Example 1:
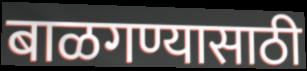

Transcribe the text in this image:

बाळगण्यासाठी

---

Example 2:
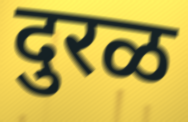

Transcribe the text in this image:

दुरळ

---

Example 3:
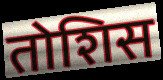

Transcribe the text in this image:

तोशिस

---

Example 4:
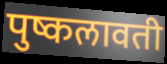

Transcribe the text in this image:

पुष्कलावती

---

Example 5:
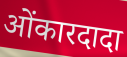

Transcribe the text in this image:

ओंकारदादा